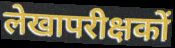
लेखापरीक्षकों